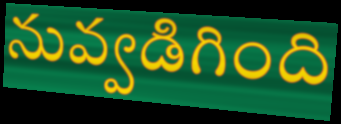
నువ్వడిగింది